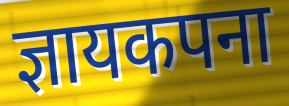
ज्ञायकपना